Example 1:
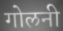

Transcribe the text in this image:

गोलनी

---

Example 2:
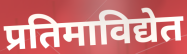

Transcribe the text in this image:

प्रतिमाविद्येत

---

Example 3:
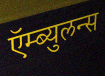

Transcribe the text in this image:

ऍम्ब्युलन्स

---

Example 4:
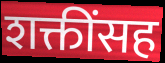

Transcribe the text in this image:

शक्तींसह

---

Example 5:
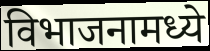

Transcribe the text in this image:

विभाजनामध्ये